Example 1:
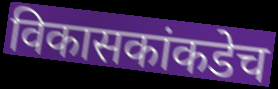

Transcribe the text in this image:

विकासकांकडेच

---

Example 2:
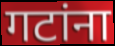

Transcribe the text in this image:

गटांना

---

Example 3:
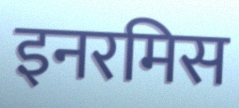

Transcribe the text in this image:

इनरमिस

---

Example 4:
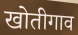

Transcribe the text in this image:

खोतीगाव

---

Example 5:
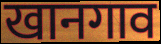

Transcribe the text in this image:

खानगाव